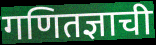
गणितज्ञाची